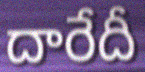
దారేదీ